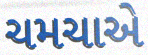
ચમચાએ